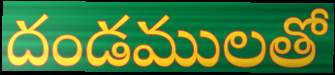
దండములతో